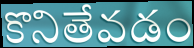
కొనితేవడం